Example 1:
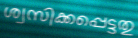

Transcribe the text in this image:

ശ്വസിക്കപ്പെട്ടതു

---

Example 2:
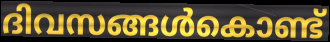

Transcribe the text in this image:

ദിവസങ്ങൾകൊണ്ട്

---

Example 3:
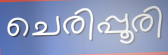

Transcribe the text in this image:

ചെരിപ്പൂരി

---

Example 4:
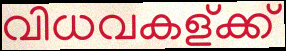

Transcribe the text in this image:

വിധവകള്ക്ക്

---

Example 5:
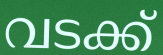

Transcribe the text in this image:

വടക്ക്